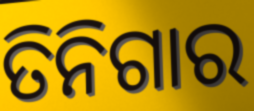
ତିନିଗାର